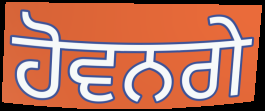
ਹੋਵਨਗੇ